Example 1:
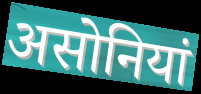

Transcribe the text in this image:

असोनियां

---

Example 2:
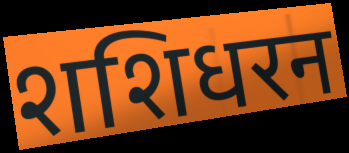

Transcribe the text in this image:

शशिधरन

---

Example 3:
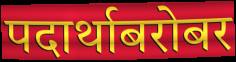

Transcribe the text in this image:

पदार्थाबरोबर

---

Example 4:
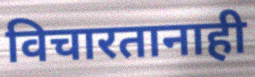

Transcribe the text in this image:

विचारतानाही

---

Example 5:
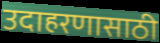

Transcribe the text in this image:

उदाहरणासाठी